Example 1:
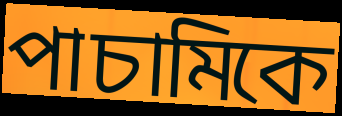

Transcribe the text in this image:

পাচামিকে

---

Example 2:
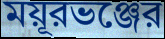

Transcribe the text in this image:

ময়ূরভঞ্জের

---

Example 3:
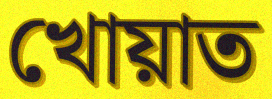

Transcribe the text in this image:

খোয়াত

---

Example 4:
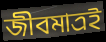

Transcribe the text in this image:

জীবমাত্রই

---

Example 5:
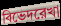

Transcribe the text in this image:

বিভেদরেখা